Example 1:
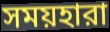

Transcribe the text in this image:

সময়হারা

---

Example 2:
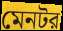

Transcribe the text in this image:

মেনটর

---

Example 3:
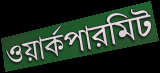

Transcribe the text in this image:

ওয়ার্কপারমিট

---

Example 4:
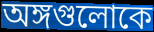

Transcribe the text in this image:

অঙ্গগুলোকে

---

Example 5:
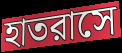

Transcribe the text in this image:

হাতরাসে